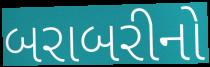
બરાબરીનો